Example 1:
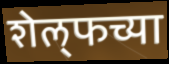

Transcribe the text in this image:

शेल्फच्या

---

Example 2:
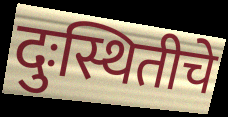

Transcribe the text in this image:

दुःस्थितीचे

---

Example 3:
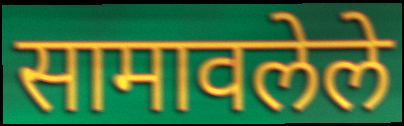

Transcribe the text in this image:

सामावलेले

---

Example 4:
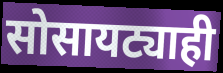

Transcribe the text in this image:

सोसायट्याही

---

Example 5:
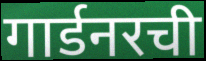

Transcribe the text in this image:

गार्डनरची